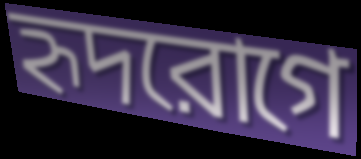
হৃদরোগে